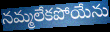
నమ్మలేకపోయేను